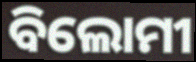
ବିଲୋମୀ